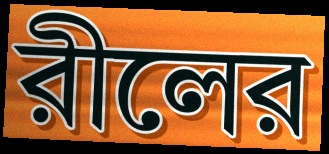
রীলের